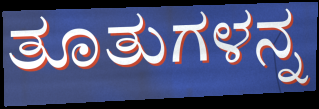
ತೂತುಗಳನ್ನ